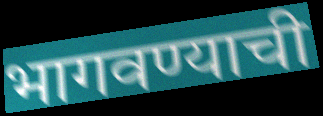
भागवण्याची